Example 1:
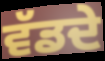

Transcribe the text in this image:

ਵੱਡਦੇ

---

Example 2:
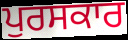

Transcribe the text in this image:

ਪੁਰਸਕਾਰ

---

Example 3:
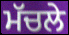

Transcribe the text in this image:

ਮੱਚਲੇ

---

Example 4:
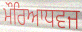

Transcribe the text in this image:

ਮੌਰਿਆਧਵਜ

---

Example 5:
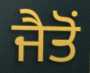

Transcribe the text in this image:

ਜੈਤੋਂ